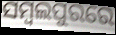
ସମ୍ବଲପୁରରେ